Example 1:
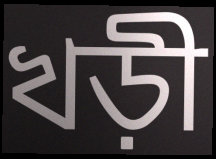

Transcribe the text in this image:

খড়ী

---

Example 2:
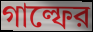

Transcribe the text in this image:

গাল্ফের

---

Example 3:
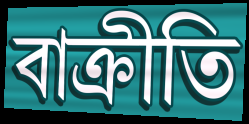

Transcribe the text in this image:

বাক্রীতি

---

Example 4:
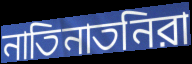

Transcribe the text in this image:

নাতিনাতনিরা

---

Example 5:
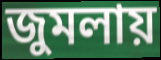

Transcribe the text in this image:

জুমলায়